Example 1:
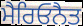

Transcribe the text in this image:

ਮੈਰਿਓਨੈਤ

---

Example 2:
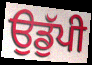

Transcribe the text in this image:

ਉਡੁੱਪੀ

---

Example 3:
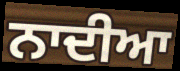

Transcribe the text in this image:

ਨਾਦੀਆ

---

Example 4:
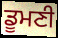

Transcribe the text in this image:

ਡੂਮਣੀ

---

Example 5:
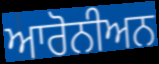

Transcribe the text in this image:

ਆਰੋਨੀਅਨ